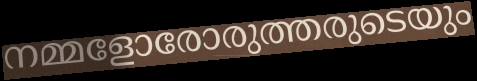
നമ്മളോരോരുത്തരുടെയും